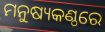
ମନୁଷ୍ୟକଣ୍ଠରେ